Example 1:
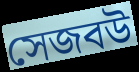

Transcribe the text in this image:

সেজবউ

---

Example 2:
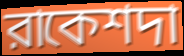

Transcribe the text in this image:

রাকেশদা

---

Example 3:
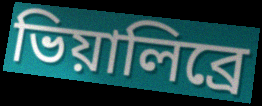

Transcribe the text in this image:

ভিয়ালিব্রে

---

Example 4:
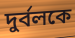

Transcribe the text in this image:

দুর্বলকে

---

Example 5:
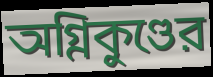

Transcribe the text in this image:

অগ্নিকুণ্ডের